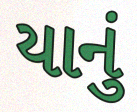
યાનું